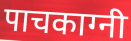
पाचकाग्नी